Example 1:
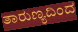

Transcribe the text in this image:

ತಾರುಣ್ಯದಿಂದ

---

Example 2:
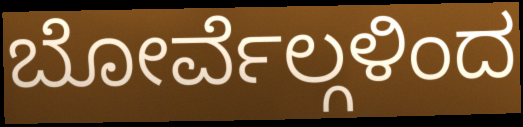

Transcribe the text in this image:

ಬೋರ್ವೆಲ್ಗಳಿಂದ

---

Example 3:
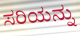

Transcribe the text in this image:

ಸರಿಯನ್ನು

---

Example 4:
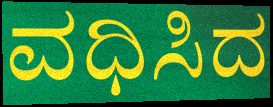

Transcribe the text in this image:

ವಧಿಸಿದ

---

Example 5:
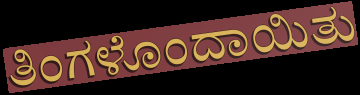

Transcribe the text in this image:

ತಿಂಗಳೊಂದಾಯಿತು